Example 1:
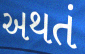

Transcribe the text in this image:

અથતં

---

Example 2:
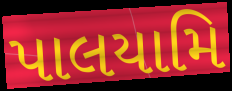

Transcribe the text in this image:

પાલયામિ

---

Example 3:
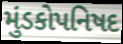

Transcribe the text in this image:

મુંડકોપનિષદ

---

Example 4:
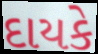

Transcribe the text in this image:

દાયકે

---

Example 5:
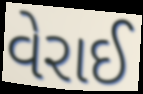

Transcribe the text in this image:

વેરાઈ